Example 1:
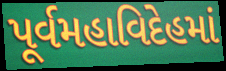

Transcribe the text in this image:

પૂર્વમહાવિદેહમાં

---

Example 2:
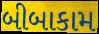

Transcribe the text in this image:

બીબાકામ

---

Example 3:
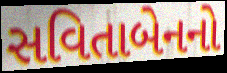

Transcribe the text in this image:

સવિતાબેનનો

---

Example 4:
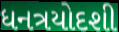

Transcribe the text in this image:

ધનત્રયોદશી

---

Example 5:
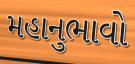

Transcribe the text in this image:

મહાનુભાવો